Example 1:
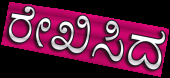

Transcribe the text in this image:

ರೇಖಿಸಿದ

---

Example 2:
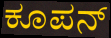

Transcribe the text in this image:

ಕೂಪನ್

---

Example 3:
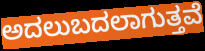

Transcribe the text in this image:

ಅದಲುಬದಲಾಗುತ್ತವೆ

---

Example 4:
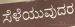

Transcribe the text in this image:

ಸೆಳೆಯುವುದರ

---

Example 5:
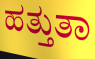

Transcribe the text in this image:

ಹತ್ತುತಾ